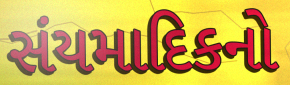
સંયમાદિકનો